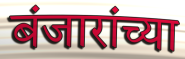
बंजारांच्या